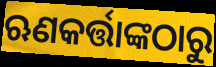
ଋଣକର୍ତ୍ତାଙ୍କଠାରୁ